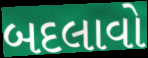
બદલાવો